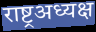
राष्ट्रअध्यक्ष